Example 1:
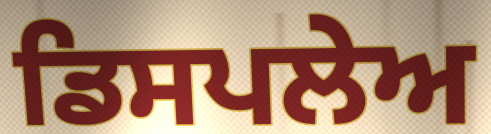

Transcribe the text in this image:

ਡਿਸਪਲੇਅ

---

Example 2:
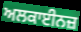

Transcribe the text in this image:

ਅਲਕਾਈਨਜ਼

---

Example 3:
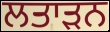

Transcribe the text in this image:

ਲਤਾੜਨ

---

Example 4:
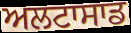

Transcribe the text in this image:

ਅਲਟਾਸਾਡ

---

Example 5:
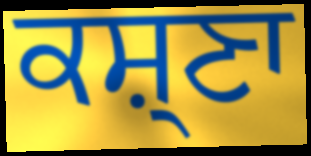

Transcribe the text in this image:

ਕਸ਼੍ਣਾ